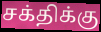
சக்திக்கு